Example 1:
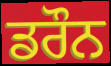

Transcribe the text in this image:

ਡਰੌਨ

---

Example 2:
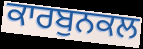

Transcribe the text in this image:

ਕਾਰਬੁਨਕਲ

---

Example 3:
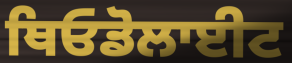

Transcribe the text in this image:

ਥਿਓਡੋਲਾਈਟ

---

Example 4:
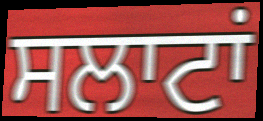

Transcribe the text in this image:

ਸਲਾਟਾਂ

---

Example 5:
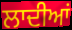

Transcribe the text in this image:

ਲਾਦੀਆਂ